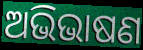
ଅଭିଭାଷଣ